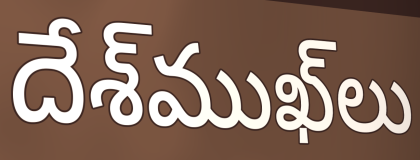
దేశ్‌ముఖ్‌లు